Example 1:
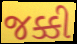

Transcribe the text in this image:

જક્કી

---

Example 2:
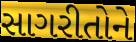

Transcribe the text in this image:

સાગરીતોને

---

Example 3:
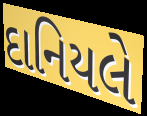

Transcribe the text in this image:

દાનિયલે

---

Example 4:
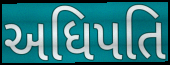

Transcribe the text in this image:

અધિપતિ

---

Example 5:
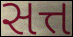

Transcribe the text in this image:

સત્ત